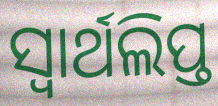
ସ୍ୱାର୍ଥଲିପ୍ତ